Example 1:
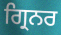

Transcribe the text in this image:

ਗ੍ਰਿਨਰ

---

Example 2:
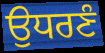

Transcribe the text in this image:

ਉਧਰਣੰ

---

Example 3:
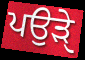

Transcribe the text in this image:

ਪਉੜੑੇ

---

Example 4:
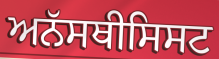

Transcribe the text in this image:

ਅਨੱਸਥੀਸਿਸਟ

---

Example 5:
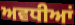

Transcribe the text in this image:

ਅਵਧੀਆਂ